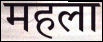
महला